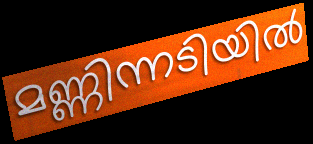
മണ്ണിന്നടിയിൽ